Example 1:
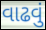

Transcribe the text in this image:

વાઢવું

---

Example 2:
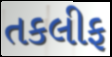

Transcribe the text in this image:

તકલીફ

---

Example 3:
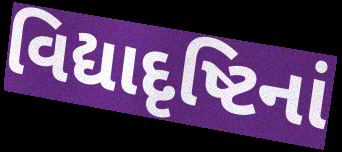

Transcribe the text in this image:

વિદ્યાદૃષ્ટિનાં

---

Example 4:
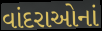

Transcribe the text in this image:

વાંદરાઓનાં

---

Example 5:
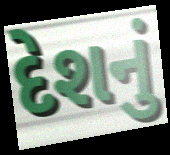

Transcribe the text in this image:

દેશનું